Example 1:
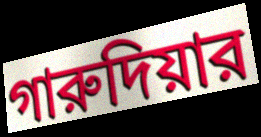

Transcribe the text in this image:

গারুদিয়ার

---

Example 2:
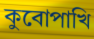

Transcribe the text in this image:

কুবোপাখি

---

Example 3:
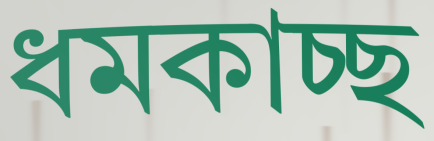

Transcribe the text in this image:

ধমকাচ্ছ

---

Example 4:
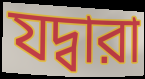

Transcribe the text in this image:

যদ্বারা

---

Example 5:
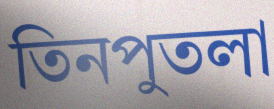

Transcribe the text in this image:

তিনপুতলা